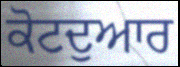
ਕੋਟਦੁਆਰ